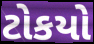
ટોકયો